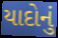
યાદોનું